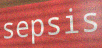
sepsis